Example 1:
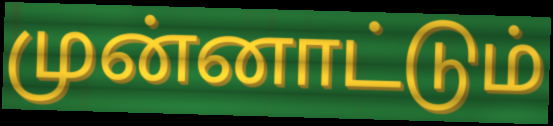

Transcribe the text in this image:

முன்னாட்டும்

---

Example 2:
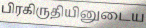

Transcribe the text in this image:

பிரகிருதியினுடைய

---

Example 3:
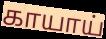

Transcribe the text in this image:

காயாய்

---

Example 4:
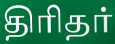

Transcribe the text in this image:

திரிதர்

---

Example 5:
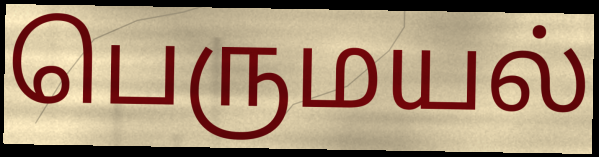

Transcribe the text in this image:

பெருமயல்